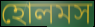
হোলমস